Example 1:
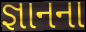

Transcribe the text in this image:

જ્ઞાનના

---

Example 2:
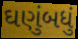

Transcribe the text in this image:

ઘણુંબધું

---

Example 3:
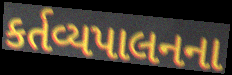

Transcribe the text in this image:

કર્તવ્યપાલનના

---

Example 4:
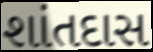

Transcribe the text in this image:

શાંતદાસ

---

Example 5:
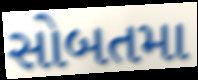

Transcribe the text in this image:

સોબતમા